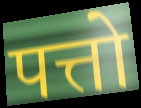
पत्तो